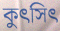
কুৎসিৎ